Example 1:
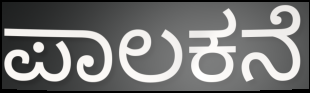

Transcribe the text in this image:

ಪಾಲಕನೆ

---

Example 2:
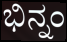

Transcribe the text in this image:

ಭಿನ್ನಂ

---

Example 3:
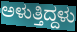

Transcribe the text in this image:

ಅಳುತ್ತಿದ್ದಳು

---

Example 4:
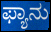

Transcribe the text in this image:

ಫ್ಯಾನು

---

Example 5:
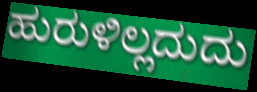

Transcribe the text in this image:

ಹುರುಳಿಲ್ಲದುದು